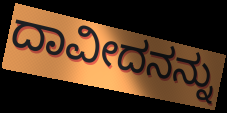
ದಾವೀದನನ್ನು